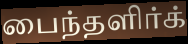
பைந்தளிர்க்